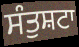
ਸੰਤੁਸ਼ਟਾ